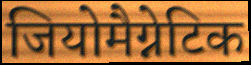
जियोमैग्नेटिक